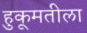
हुकूमतीला